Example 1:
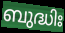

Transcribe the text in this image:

ബുദ്ധിഃ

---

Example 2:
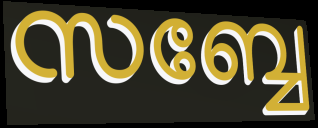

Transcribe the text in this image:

സബ്ബേ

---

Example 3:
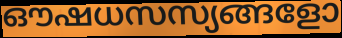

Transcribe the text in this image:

ഔഷധസസ്യങ്ങളോ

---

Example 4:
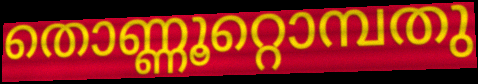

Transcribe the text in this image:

തൊണ്ണൂറ്റൊമ്പതു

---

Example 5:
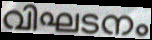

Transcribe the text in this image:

വിഘടനം